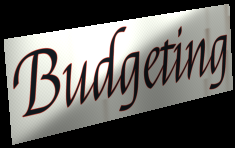
Budgeting